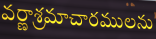
వర్ణాశ్రమాచారములను